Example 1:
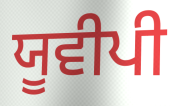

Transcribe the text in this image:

ਯੂਵੀਪੀ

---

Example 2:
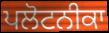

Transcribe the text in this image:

ਪਲੋਟਨੀਕਾ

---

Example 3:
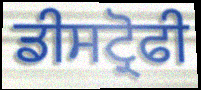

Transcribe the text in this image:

ਡੀਸਟ੍ਰੋਫੀ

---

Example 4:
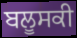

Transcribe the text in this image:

ਬਲੂਸਕੀ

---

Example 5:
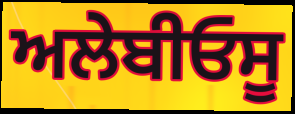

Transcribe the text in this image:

ਅਲੇਬੀਓਸੂ